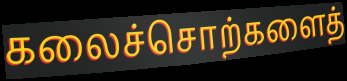
கலைச்சொற்களைத்